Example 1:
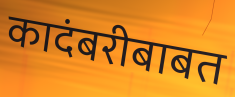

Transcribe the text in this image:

कादंबरीबाबत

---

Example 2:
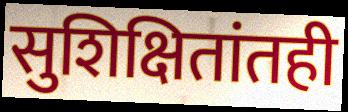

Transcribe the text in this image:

सुशिक्षितांतही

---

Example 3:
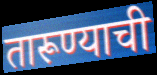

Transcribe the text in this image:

तारूण्याची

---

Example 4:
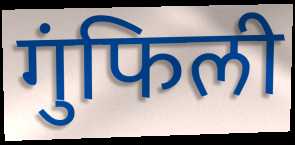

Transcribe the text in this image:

गुंफिली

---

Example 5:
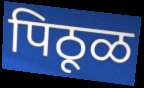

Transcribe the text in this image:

पिठूळ